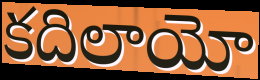
కదిలాయో